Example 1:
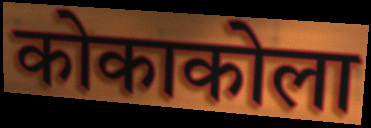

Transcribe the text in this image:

कोकाकोला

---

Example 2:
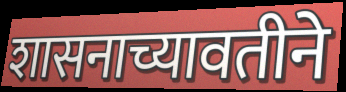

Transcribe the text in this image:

शासनाच्यावतीने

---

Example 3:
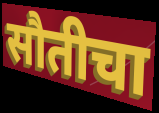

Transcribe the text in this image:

सौतीचा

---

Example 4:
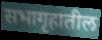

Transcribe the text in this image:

सभागृहातील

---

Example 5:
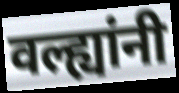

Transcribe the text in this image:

वल्ह्यांनी